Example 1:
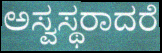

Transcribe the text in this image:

ಅಸ್ವಸ್ಥರಾದರೆ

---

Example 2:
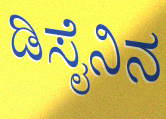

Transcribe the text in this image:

ಡಿಸೈನಿನ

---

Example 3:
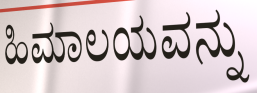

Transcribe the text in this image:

ಹಿಮಾಲಯವನ್ನು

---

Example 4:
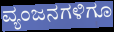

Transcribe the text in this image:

ವ್ಯಂಜನಗಳಿಗೂ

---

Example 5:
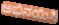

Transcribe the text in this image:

ಅಭಿನಯಿಸಿ